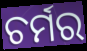
ଚର୍ମର